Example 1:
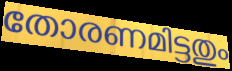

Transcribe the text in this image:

തോരണമിട്ടതും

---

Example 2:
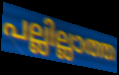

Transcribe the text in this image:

പല്ലില്ലാത്ത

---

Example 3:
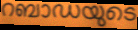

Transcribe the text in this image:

റബാഡയുടെ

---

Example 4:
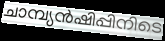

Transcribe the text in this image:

ചാമ്പ്യൻഷിപ്പിനിടെ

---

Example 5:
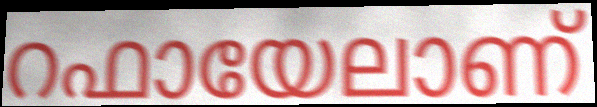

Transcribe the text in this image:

റഫായേലാണ്